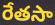
రేతసా